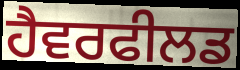
ਹੈਵਰਫੀਲਡ